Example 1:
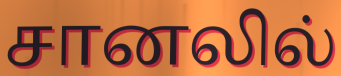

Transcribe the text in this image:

சானலில்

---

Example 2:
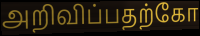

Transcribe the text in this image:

அறிவிப்பதற்கோ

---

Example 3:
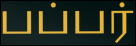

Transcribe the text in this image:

பப்பர்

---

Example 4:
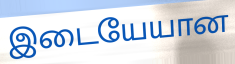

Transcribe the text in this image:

இடையேயான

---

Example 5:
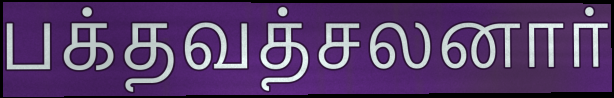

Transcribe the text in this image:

பக்தவத்சலனார்